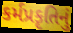
કર્મપ્રકૃતિનું